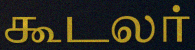
கூடலர்